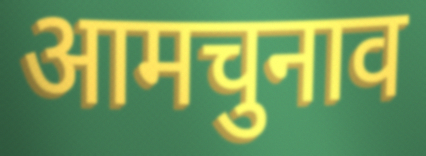
आमचुनाव